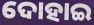
ଦୋହାଇ